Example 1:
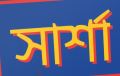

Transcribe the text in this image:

সার্শা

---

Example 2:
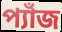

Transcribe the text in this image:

প্যাঁজ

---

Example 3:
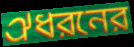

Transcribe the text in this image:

ঐধরনের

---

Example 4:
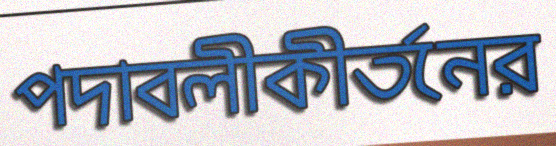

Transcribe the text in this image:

পদাবলীকীর্তনের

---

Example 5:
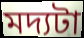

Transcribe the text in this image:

মদ্যটা